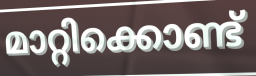
മാറ്റിക്കൊണ്ട്